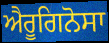
ਐਰੂਗਿਨੋਸਾ